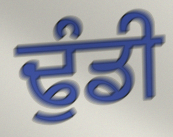
ਢੁੰਡੀ